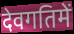
देवगतिमें